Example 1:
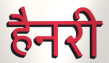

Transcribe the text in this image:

हैनरी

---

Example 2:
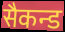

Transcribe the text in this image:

सैकन्ड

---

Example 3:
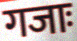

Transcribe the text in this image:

गजाः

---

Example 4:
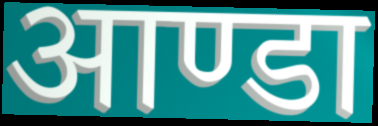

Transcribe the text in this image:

आण्डा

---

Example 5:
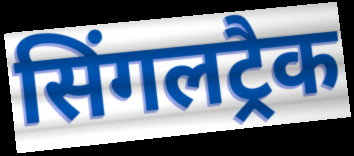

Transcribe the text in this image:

सिंगलट्रैक